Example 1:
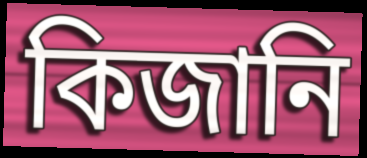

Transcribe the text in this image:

কিজানি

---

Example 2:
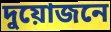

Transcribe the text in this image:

দুয়োজনে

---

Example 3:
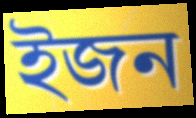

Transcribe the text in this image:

ইজন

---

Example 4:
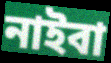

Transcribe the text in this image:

নাইবা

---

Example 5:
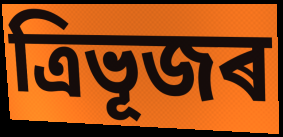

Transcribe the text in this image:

ত্ৰিভূজৰ